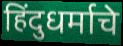
हिंदुधर्माचे